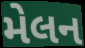
મેલન